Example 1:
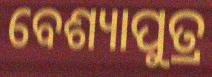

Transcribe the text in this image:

ବେଶ୍ୟାପୁତ୍ର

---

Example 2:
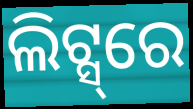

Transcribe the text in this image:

ଲିଟ୍ସ୍‌ରେ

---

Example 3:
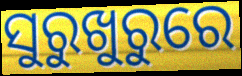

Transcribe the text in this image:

ସୁରୁଖୁରୁରେ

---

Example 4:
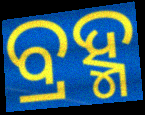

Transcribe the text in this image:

ବ୍ରହ୍ମ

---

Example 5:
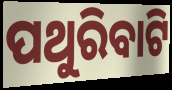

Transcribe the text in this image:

ପଥୁରିବାଟି